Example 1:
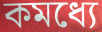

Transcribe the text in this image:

কমধ্যে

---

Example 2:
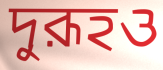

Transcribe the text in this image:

দুরূহও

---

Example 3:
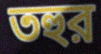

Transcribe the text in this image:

তহুর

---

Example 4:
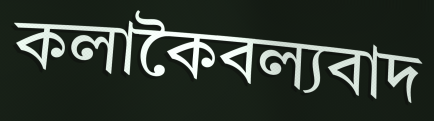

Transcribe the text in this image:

কলাকৈবল্যবাদ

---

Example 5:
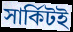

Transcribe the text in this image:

সার্কিটই